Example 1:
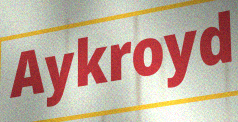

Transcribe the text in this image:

Aykroyd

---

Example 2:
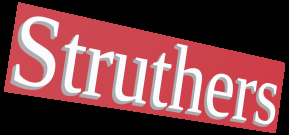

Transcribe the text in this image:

Struthers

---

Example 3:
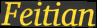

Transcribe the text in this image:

Feitian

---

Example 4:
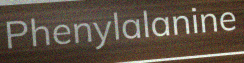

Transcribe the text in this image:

Phenylalanine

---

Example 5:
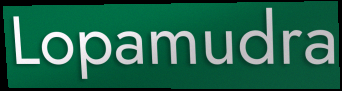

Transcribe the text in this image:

Lopamudra